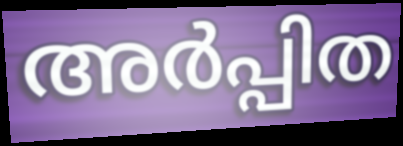
അർപ്പിത